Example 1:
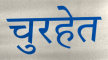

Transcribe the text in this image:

चुरहेत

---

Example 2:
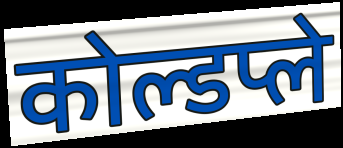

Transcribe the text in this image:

कोल्डप्ले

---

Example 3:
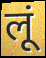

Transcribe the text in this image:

लूं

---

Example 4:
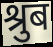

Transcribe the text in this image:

श्रुब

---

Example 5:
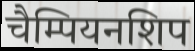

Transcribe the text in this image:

चैम्पियनशिप